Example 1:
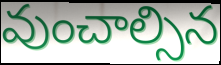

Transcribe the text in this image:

వుంచాల్సిన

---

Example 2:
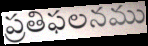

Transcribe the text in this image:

ప్రతిఫలనము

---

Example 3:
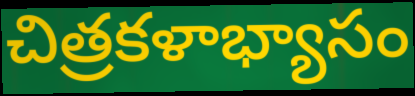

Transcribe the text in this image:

చిత్రకళాభ్యాసం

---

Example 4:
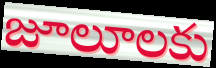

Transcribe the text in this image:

జూలూలకు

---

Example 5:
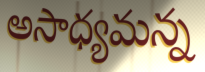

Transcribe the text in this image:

అసాధ్యమన్న